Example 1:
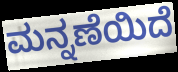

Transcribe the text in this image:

ಮನ್ನಣೆಯಿದೆ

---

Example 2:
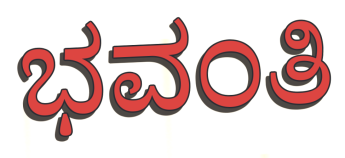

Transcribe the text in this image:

ಭವಂತಿ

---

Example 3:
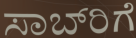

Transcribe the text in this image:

ಸಾಬ್‌ರಿಗೆ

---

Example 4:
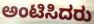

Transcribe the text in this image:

ಅಂಟಿಸಿದರು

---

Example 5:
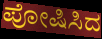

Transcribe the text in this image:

ಪೋಷಿಸಿದ